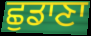
ਛੁਡਾਣਾ